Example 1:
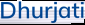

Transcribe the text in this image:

Dhurjati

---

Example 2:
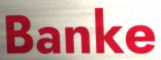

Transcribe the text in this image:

Banke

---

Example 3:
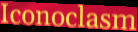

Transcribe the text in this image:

Iconoclasm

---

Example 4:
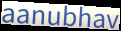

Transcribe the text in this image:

aanubhav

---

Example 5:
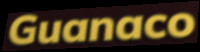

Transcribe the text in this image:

Guanaco